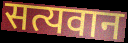
सत्यवान